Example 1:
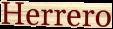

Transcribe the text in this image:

Herrero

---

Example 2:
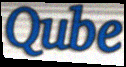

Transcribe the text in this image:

Qube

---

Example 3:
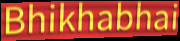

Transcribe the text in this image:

Bhikhabhai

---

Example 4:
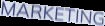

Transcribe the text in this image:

MARKETING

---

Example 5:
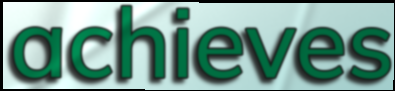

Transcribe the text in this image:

achieves